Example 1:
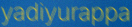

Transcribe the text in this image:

yadiyurappa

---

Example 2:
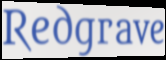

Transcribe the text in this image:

Redgrave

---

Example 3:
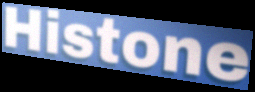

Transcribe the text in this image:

Histone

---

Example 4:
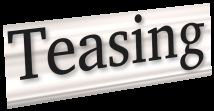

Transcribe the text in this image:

Teasing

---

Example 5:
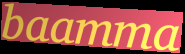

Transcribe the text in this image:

baamma